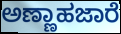
ಅಣ್ಣಾಹಜಾರೆ